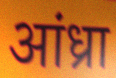
आंध्रा